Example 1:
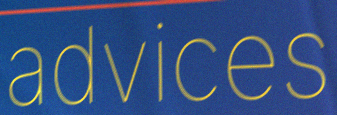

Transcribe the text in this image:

advices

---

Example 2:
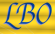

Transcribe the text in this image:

LBO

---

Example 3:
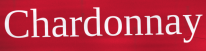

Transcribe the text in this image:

Chardonnay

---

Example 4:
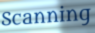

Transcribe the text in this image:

Scanning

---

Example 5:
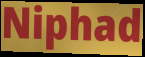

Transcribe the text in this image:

Niphad